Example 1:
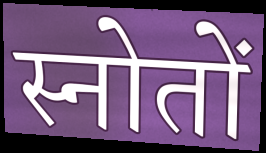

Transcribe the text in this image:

स्नोतों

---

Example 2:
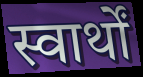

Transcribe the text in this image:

स्वार्थों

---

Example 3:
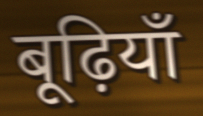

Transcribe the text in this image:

बूढ़ियाँ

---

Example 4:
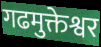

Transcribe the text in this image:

गढमुक्तेश्वर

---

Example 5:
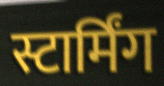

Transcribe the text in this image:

स्टार्मिंग